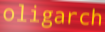
oligarch